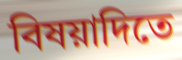
বিষয়াদিতে